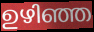
ഉഴിഞ്ഞ